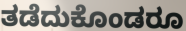
ತಡೆದುಕೊಂಡರೂ